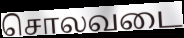
சொலவடை